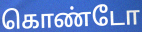
கொண்டோ